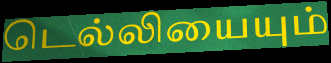
டெல்லியையும்